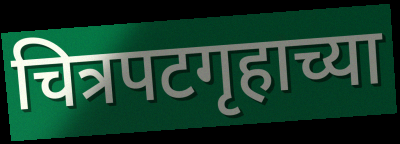
चित्रपटगृहाच्या